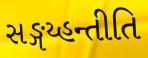
સઙ્ગય્હન્તીતિ